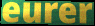
eurer